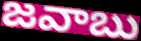
జవాబు